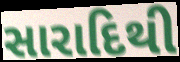
સારાદિથી